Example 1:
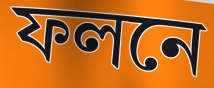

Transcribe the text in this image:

ফলনে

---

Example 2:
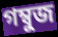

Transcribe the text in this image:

গম্বুজ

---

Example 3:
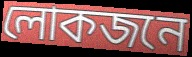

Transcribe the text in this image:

লোকজনে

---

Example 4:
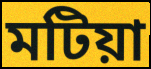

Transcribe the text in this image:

মটিয়া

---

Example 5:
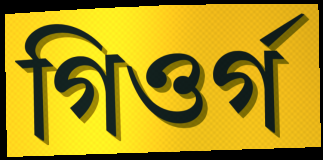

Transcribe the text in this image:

গিওৰ্গ